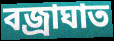
বজ্রাঘাত